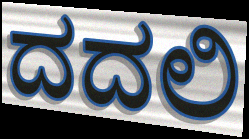
ದದಲಿ